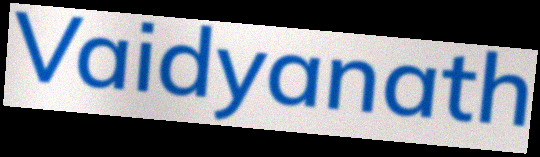
Vaidyanath